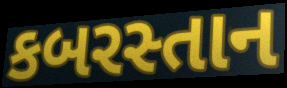
કબરસ્તાન